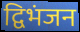
द्विभंजन